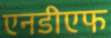
एनडीएफ